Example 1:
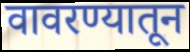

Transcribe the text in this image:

वावरण्यातून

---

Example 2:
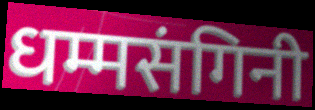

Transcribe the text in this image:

धम्मसंगिनी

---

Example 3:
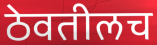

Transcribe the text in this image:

ठेवतीलच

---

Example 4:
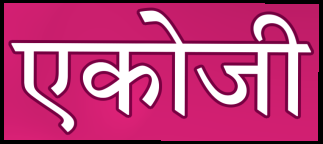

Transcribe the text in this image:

एकोजी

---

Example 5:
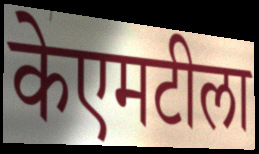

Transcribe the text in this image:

केएमटीला